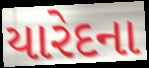
યારેદના